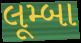
લૂમ્બા